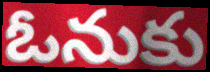
ఓనుకు